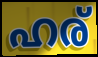
ഹര്